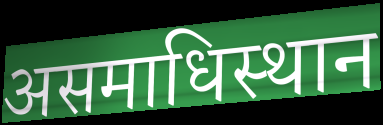
असमाधिस्थान